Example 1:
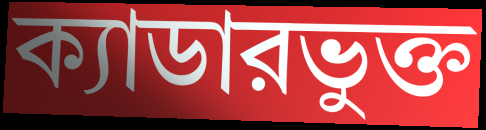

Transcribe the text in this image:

ক্যাডারভুক্ত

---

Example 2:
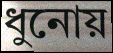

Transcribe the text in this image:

ধুনোয়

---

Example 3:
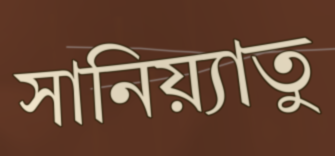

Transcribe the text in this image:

সানিয়্যাতু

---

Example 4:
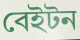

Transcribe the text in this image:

বেইটন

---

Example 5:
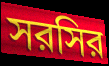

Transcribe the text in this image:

সরসির